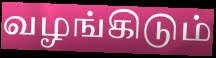
வழங்கிடும்